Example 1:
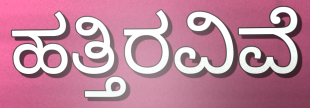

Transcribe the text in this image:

ಹತ್ತಿರವಿವೆ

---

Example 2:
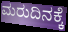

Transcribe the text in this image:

ಮರುದಿನಕ್ಕೆ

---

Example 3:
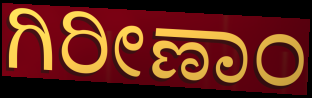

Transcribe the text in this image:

ಗಿರೀಣಾಂ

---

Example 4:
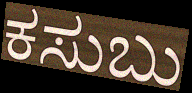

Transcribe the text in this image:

ಕಸುಬು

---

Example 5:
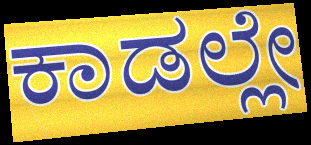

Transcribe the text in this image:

ಕಾಡಲ್ಲೇ